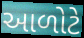
આળોટે